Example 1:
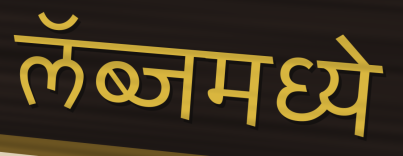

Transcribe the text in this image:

लॅब्जमध्ये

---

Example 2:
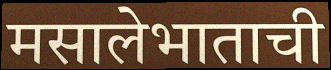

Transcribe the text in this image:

मसालेभाताची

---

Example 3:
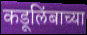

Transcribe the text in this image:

कडूलिंबाच्या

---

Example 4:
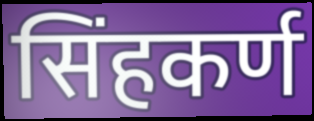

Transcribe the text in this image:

सिंहकर्ण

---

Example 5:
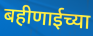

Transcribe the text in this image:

बहीणाईच्या